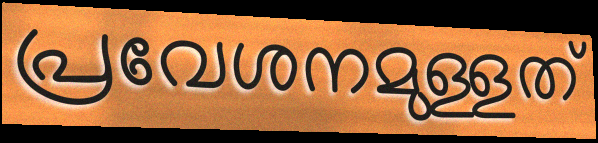
പ്രവേശനമുള്ളത്